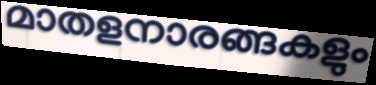
മാതളനാരങ്ങകളും